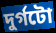
দুৰ্গটো